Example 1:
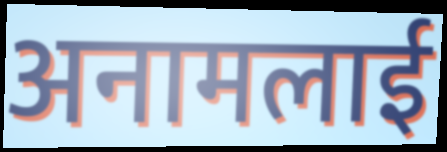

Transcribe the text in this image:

अनामलाई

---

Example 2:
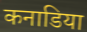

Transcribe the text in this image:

कनाडिया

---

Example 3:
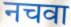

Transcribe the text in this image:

नचवा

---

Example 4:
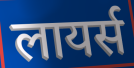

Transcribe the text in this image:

लायर्स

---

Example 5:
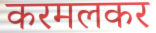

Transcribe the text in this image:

करमलकर